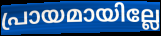
പ്രായമായില്ലേ